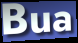
Bua